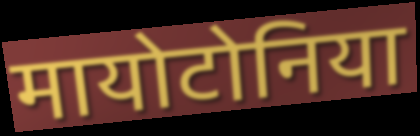
मायोटोनिया